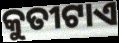
କୁତୀଟାଏ